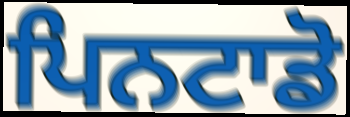
ਪਿਨਟਾਡੋ